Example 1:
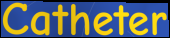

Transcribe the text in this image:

Catheter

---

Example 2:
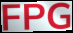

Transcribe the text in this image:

FPG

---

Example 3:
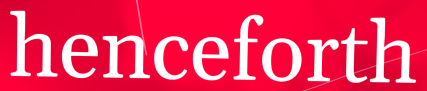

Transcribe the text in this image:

henceforth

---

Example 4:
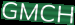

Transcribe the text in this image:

GMCH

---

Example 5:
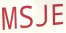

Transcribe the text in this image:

MSJE